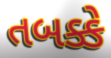
તબક્કે